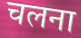
चलना